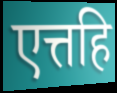
एत्तहि